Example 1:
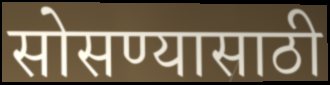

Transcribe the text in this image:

सोसण्यासाठी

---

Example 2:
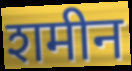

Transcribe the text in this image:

शमीन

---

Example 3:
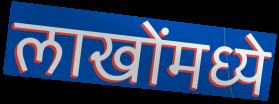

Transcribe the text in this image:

लाखोंमध्ये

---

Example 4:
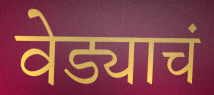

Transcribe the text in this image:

वेड्याचं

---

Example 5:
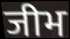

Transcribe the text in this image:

जीभ